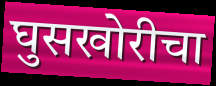
घुसखोरीचा